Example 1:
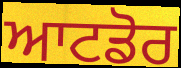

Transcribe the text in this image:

ਆਟਡੋਰ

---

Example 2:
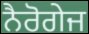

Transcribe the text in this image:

ਨੈਰੋਗੇਜ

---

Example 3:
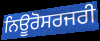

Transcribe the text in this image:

ਨਿਊਰੋਸਰਜਰੀ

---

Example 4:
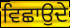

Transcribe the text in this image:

ਵਿਛਾਉਦੇ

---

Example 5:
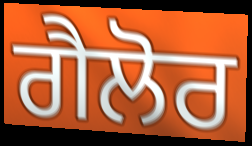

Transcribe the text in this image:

ਗੈਲੋਰ